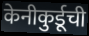
केनीकुर्डूची